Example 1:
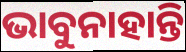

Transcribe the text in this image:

ଭାବୁନାହାନ୍ତି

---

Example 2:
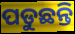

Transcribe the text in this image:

ପଡୁଛନ୍ତି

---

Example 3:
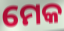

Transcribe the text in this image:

ମେକ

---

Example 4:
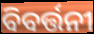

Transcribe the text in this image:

ବିବର୍ତ୍ତନୀ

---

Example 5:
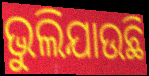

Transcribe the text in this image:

ଭୁଲିଯାଉଛି